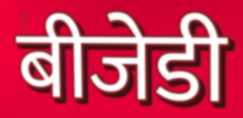
बीजेडी